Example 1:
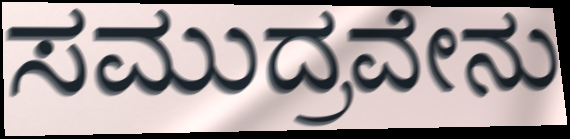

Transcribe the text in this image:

ಸಮುದ್ರವೇನು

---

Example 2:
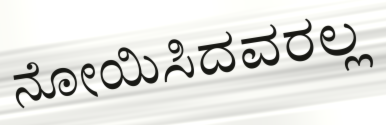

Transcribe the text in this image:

ನೋಯಿಸಿದವರಲ್ಲ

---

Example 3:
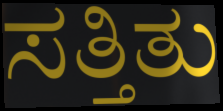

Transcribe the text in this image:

ಸತ್ತಿತು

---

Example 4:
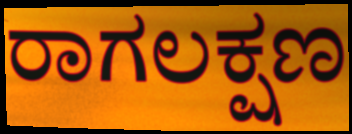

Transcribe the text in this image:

ರಾಗಲಕ್ಷಣ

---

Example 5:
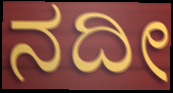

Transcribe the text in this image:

ನದೀ